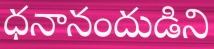
ధనానందుడిని